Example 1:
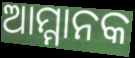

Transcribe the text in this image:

ଆମ୍ମାନକ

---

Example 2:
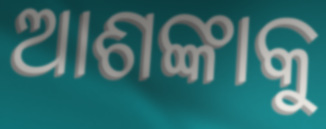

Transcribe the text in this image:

ଆଶଙ୍କାକୁ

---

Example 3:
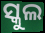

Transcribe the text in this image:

ସ୍କୁଲ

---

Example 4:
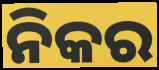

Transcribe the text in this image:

ନିକର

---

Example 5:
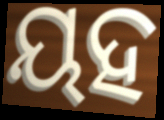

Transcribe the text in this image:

ୟହ